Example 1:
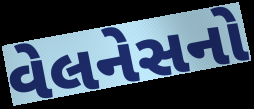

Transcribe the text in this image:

વેલનેસનો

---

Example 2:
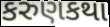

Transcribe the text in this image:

કરુણકથા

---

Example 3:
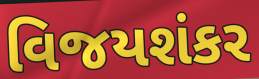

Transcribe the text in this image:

વિજયશંકર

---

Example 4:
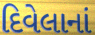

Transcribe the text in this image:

દિવેલાનાં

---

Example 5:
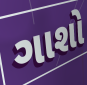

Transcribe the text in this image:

ગાશો